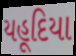
યહૂદિયા